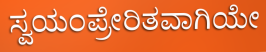
ಸ್ವಯಂಪ್ರೇರಿತವಾಗಿಯೇ